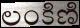
లంకిణి